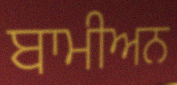
ਬਾਮੀਅਨ